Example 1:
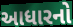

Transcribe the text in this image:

આધારનો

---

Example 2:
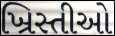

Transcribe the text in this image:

ખ્રિસ્તીઓ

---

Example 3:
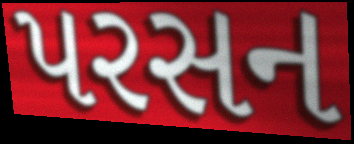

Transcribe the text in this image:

પરસન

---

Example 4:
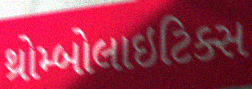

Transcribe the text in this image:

થ્રોમ્બોલાઇટિક્સ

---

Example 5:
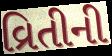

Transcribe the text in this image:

વ્રિતીની